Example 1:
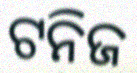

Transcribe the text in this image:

ଟନିଜ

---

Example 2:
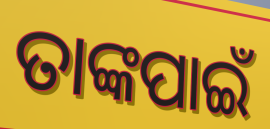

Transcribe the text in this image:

ତାଙ୍କପାଇଁ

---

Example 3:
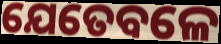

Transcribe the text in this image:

ଯେତେବଳେ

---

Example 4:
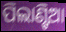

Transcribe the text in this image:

ପିଲାଣ୍ଟିଆ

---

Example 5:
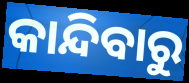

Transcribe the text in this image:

କାନ୍ଦିବାରୁ